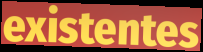
existentes